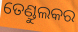
ତେଣ୍ଡୁଲକର